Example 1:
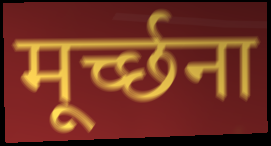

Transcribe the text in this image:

मूर्च्छना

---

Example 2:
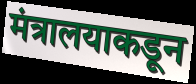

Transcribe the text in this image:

मंत्रालयाकडून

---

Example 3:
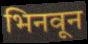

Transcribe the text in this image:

भिनवून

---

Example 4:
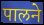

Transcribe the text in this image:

पालने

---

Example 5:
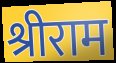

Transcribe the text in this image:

श्रीराम